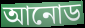
আনোড